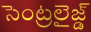
సెంట్రలైజ్డ్